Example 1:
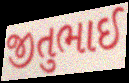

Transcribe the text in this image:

જીતુભાઈ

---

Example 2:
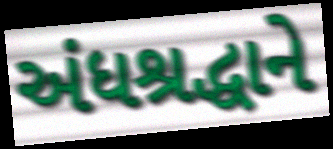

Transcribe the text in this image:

અંધશ્રદ્ધાને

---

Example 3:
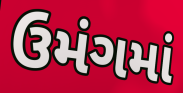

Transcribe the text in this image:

ઉમંગમાં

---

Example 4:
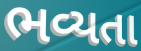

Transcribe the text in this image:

ભવ્યતા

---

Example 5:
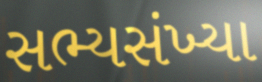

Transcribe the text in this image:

સભ્યસંખ્યા